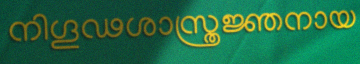
നിഗൂഢശാസ്ത്രജ്ഞനായ